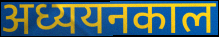
अध्ययनकाल